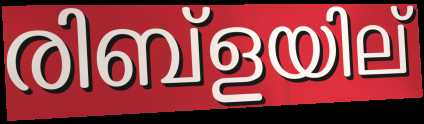
രിബ്ളയില്